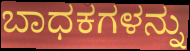
ಬಾಧಕಗಳನ್ನು